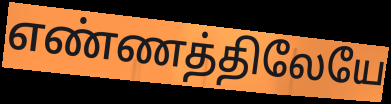
எண்ணத்திலேயே